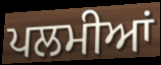
ਪਲਮੀਆਂ